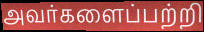
அவர்களைப்பற்றி